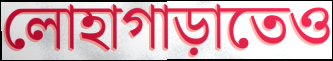
লোহাগাড়াতেও